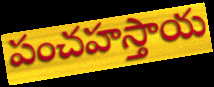
పంచహస్తాయ